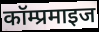
कॉम्प्रमाइज